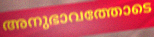
അനുഭാവത്തോടെ